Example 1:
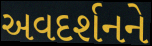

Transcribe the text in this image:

અવદર્શનને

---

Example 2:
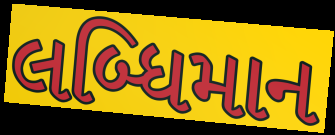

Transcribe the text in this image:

લબ્ધિમાન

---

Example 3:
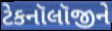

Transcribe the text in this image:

ટેકનૉલૉજીને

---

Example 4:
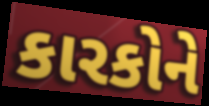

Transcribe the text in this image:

કારકોને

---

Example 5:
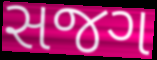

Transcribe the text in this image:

સજગ